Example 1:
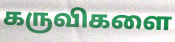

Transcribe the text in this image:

கருவிகளை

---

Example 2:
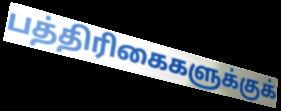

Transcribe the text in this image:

பத்திரிகைகளுக்குக்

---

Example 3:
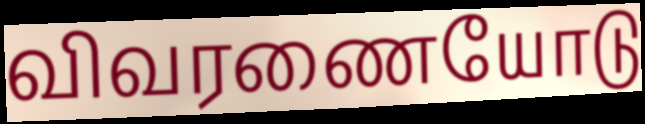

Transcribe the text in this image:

விவரணையோடு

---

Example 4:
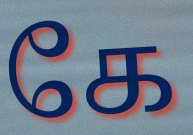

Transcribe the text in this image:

கே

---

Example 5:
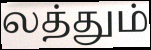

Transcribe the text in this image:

லத்தும்